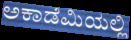
ಅಕಾಡೆಮಿಯಲ್ಲಿ